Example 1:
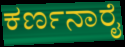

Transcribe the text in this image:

ಕರ್ಣನಾರೈ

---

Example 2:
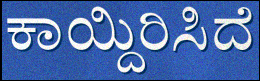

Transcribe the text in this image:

ಕಾಯ್ದಿರಿಸಿದೆ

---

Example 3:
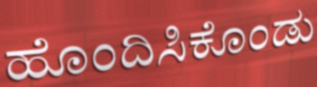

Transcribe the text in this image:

ಹೊಂದಿಸಿಕೊಂಡು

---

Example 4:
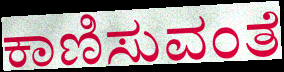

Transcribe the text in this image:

ಕಾಣಿಸುವಂತೆ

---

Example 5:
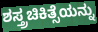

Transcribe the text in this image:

ಶಸ್ತ್ರಚಿಕಿತ್ಸೆಯನ್ನು